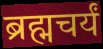
ब्रह्मचर्यं